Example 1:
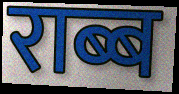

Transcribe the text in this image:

राब्ब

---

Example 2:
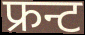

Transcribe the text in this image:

फ्रन्ट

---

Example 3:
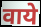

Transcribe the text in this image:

वाये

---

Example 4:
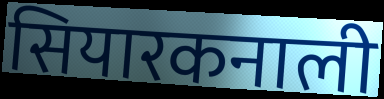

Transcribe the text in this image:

सियारकनाली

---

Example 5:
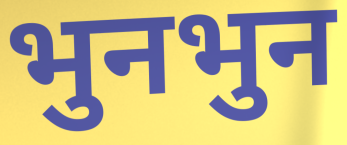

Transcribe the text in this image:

भुनभुन